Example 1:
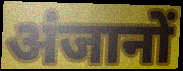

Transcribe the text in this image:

अंजानों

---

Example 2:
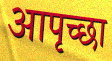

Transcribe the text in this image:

आपृच्छा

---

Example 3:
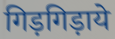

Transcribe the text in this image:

गिड़गिड़ाये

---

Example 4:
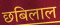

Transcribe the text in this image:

छबिलाल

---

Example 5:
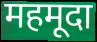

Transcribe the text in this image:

महमूदा